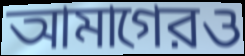
আমাগেরও